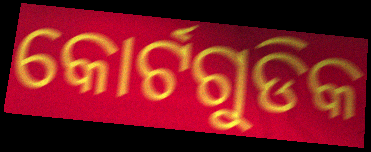
କୋର୍ଟଗୁଡିକ